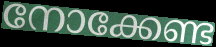
നോക്കേണ്ട